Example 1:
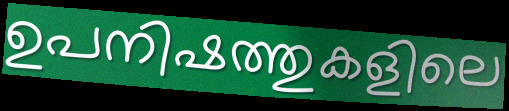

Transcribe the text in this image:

ഉപനിഷത്തുകളിലെ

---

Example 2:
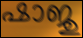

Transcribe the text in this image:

ഷാജു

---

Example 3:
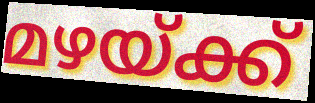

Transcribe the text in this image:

മഴയ്ക്ക്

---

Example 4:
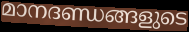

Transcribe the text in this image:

മാനദണ്ഡങ്ങളുടെ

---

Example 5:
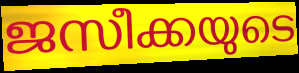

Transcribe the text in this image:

ജസീക്കയുടെ